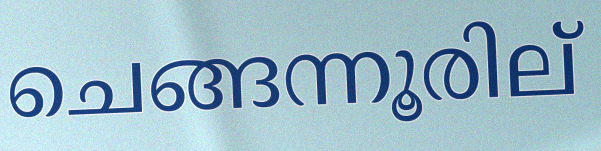
ചെങ്ങന്നൂരില്